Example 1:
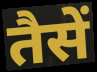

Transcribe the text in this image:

तैसें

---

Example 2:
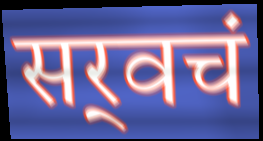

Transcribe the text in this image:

सर्वचं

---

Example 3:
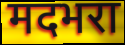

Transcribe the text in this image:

मदभरा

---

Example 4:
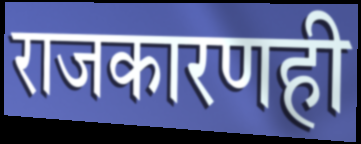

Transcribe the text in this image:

राजकारणही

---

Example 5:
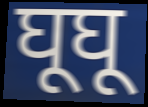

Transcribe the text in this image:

घूघू